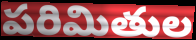
పరిమితుల